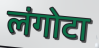
लंगोटा